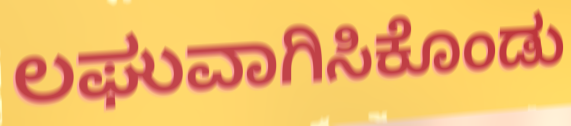
ಲಘುವಾಗಿಸಿಕೊಂಡು